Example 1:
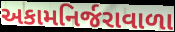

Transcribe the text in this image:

અકામનિર્જરાવાળા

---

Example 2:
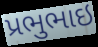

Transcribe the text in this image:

પ્રભુભાઇ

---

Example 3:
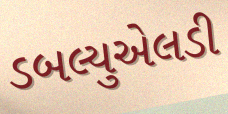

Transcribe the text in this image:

ડબલ્યુએલડી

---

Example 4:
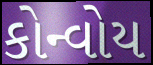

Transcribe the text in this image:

કોન્વોય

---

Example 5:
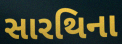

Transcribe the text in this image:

સારથિના